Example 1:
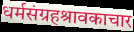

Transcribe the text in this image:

धर्मसंग्रहश्रावकाचार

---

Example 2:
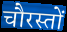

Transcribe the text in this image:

चौरस्तों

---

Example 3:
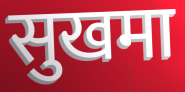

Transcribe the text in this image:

सुखमा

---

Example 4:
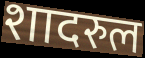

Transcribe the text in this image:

शादरुल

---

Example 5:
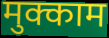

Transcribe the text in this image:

मुक्काम